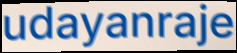
udayanraje